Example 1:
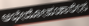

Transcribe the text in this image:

ಅಭೇದೋಪಚಾರೇನ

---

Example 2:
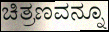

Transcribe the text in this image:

ಚಿತ್ರಣವನ್ನೂ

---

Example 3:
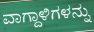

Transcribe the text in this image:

ವಾಗ್ದಾಳಿಗಳನ್ನು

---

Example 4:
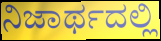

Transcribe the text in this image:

ನಿಜಾರ್ಥದಲ್ಲಿ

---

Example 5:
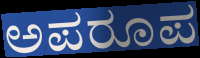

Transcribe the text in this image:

ಅಪರೂಪ